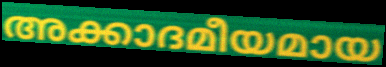
അക്കാദമീയമായ